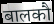
बालकौ